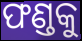
ଫଣ୍ଡକୁ